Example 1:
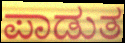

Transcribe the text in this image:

ಪಾಡುತ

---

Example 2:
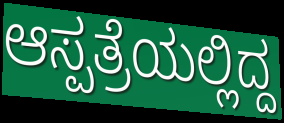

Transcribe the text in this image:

ಆಸ್ಪತ್ರೆಯಲ್ಲಿದ್ದ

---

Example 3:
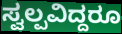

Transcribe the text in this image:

ಸ್ವಲ್ಪವಿದ್ದರೂ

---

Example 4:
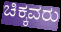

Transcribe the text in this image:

ಚಿಕ್ಕವರು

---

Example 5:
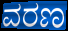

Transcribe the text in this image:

ವರಣ